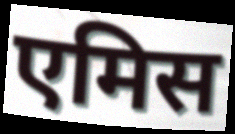
एमिस